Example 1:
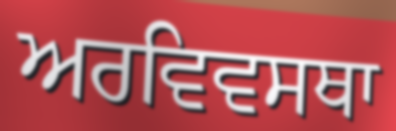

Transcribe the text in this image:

ਅਰਵਿਵਸਥਾ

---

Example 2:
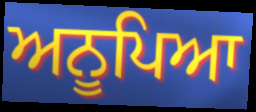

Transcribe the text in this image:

ਅਨੂਪਿਆ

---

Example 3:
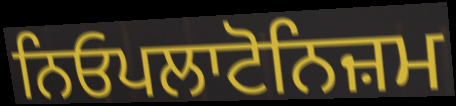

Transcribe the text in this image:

ਨਿਓਪਲਾਟੋਨਿਜ਼ਮ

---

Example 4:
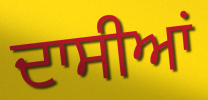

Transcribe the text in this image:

ਦਾਸੀਆਂ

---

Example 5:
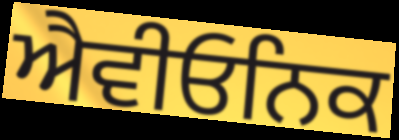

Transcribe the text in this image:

ਐਵੀਓਨਿਕ